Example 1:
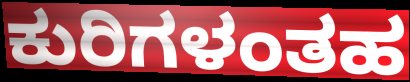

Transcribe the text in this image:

ಕುರಿಗಳಂತಹ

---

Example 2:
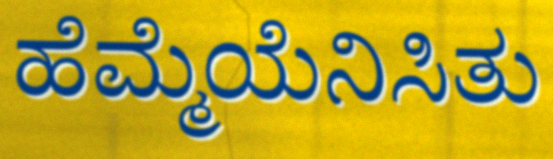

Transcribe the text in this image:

ಹೆಮ್ಮೆಯೆನಿಸಿತು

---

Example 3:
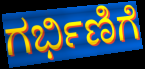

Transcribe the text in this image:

ಗರ್ಭಿಣಿಗೆ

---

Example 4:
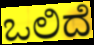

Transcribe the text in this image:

ಒಲಿದೆ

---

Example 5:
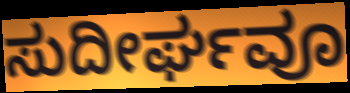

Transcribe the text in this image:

ಸುದೀರ್ಘವೂ